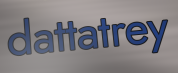
dattatrey